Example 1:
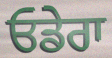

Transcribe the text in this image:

ਓਡੇਰਾ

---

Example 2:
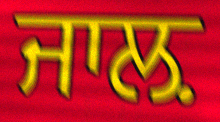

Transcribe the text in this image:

ਜਾਲ਼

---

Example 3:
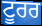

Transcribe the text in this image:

ਟੂਰਰ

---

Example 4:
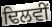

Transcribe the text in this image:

ਢਿਲਵੀਂ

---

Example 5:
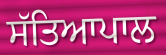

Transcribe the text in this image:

ਸੱਤਿਆਪਾਲ